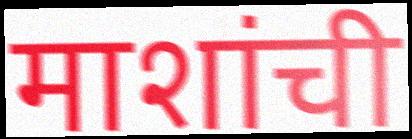
माशांची